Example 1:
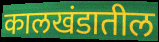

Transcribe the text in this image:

कालखंडातील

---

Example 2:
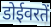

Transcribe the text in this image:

डोईवरतें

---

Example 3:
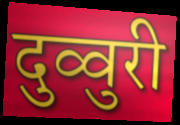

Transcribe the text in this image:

दुव्वुरी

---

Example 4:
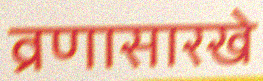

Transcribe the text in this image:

व्रणासारखे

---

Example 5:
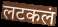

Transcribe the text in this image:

लटकलं